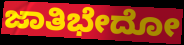
ಜಾತಿಭೇದೋ